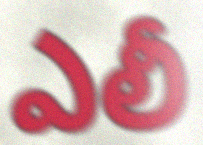
ఎలీ